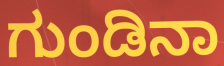
ಗುಂಡಿನಾ